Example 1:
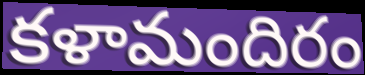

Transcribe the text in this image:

కళామందిరం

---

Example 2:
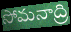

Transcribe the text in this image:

సోమనాద్రి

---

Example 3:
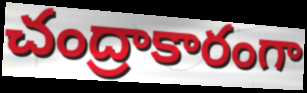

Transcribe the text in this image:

చంద్రాకారంగా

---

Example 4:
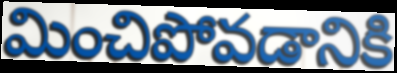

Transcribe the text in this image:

మించిపోవడానికి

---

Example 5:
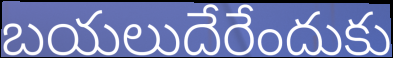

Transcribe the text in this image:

బయలుదేరేందుకు